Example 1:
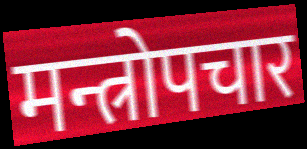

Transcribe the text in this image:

मन्त्रोपचार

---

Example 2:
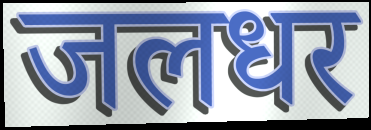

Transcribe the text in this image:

जलधर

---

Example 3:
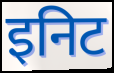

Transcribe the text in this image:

इनिट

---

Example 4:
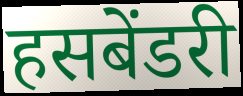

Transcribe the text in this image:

हसबेंडरी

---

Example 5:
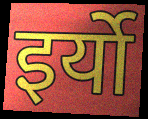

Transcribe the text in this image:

इर्यो